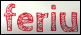
feriu